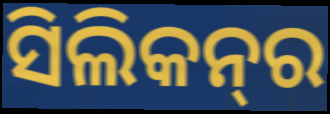
ସିଲିକନ୍‌ର